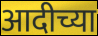
आदीच्या